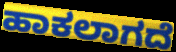
ಹಾಕಲಾಗದೆ